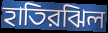
হাতিরঝিল